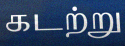
கடற்று